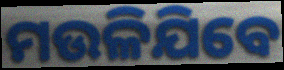
ମଉଳିଯିବେ